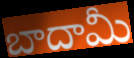
బాదామీ